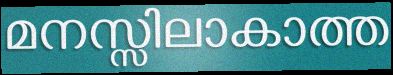
മനസ്സിലാകാത്ത